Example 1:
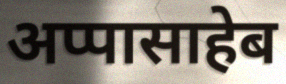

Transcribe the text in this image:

अप्पासाहेब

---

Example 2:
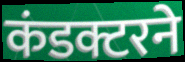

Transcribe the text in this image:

कंडक्टरने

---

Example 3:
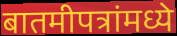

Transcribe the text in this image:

बातमीपत्रांमध्ये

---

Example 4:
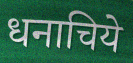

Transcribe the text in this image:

धनाचिये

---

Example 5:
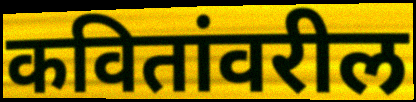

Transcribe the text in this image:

कवितांवरील